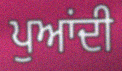
ਪੁਆਂਦੀ